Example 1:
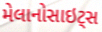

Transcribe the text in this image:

મેલાનોસાઇટ્સ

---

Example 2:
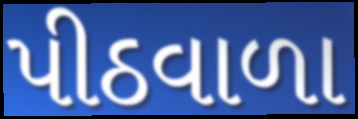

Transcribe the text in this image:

પીઠવાળા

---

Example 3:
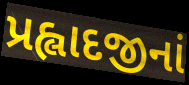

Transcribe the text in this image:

પ્રહ્લાદજીનાં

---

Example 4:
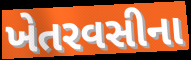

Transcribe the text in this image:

ખેતરવસીના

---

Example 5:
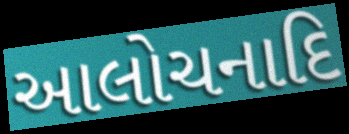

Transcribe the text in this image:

આલોચનાદિ